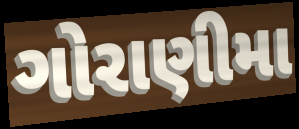
ગોરાણીમા